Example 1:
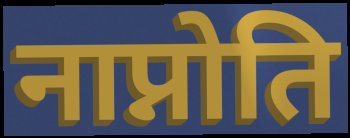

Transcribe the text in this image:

नाप्नोति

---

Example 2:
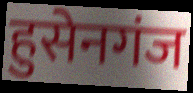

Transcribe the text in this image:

हुसेनगंज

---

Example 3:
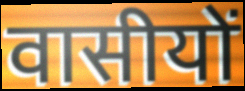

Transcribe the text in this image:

वासीयों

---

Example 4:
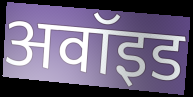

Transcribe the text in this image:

अवॉइड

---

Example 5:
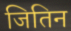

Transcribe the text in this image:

जितिन